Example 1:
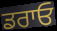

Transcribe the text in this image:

ਡਰਾਓ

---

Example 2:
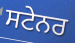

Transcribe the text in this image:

ਸਟੇਨਰ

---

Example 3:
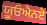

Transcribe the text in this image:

ਯੂਓਐਨਏ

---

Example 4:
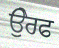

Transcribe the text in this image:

ਉੇਰਫ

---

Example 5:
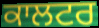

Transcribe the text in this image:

ਕਾਲਟਰ